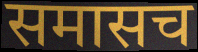
समासच